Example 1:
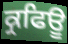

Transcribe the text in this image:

ਕ੍ਰਫਿਊ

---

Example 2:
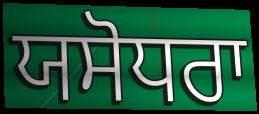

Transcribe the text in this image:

ਯਸੋਧਰਾ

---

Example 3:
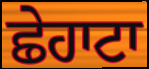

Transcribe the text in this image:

ਛੇਹਾਟਾ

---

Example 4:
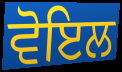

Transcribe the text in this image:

ਵੋਇਲ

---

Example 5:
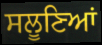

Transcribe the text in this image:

ਸਲੂਣਿਆਂ